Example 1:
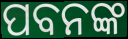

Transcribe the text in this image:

ପବନଙ୍କ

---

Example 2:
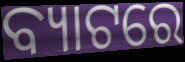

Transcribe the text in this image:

ବ୍ୟାଟରେ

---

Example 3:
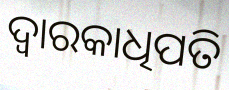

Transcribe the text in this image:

ଦ୍ୱାରକାଧିପତି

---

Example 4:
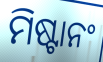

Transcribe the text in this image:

ମିଷ୍ଟାନଂ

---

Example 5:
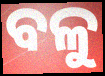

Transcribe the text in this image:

ବଳୁ